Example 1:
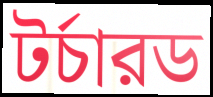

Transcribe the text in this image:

টর্চারড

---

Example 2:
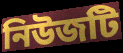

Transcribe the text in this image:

নিউজটি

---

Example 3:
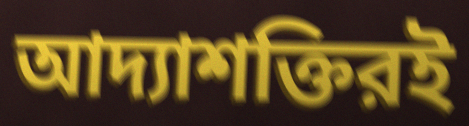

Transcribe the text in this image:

আদ্যাশক্তিরই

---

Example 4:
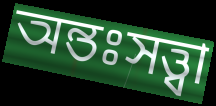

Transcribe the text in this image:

অন্তঃসত্ত্বা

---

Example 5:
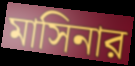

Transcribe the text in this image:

মাসিনার